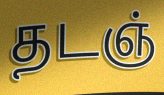
தடஞ்